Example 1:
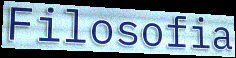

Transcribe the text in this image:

Filosofia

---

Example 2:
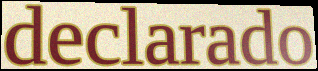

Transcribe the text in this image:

declarado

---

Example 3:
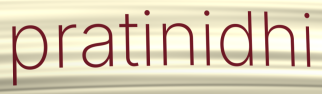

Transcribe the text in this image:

pratinidhi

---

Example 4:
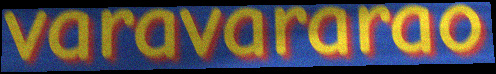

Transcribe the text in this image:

varavararao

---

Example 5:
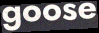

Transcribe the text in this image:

goose